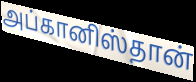
அப்கானிஸ்தான்